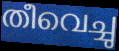
തീവെച്ചു